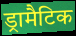
ड्रामैटिक